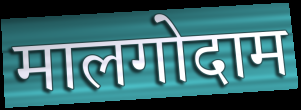
मालगोदाम